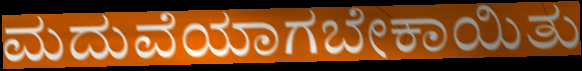
ಮದುವೆಯಾಗಬೇಕಾಯಿತು